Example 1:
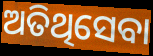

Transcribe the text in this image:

ଅତିଥିସେବା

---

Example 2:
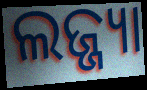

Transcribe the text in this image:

ଲଜ୍ଜ୍ୟା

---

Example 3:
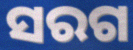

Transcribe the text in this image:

ସରଗ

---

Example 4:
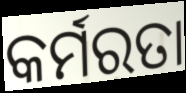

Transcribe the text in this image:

କର୍ମରତା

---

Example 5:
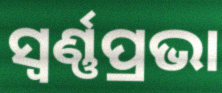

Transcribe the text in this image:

ସ୍ୱର୍ଣ୍ଣପ୍ରଭା